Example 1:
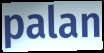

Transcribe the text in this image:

palan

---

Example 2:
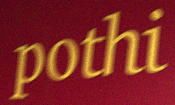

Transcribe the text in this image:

pothi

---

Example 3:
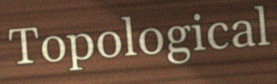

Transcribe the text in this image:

Topological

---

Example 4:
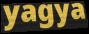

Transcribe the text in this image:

yagya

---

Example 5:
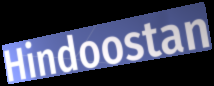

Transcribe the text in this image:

Hindoostan